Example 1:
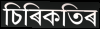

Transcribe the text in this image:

চিৰিকতিৰ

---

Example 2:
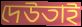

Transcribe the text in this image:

দেউতাই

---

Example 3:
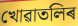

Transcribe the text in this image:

খোৱাতলিৰ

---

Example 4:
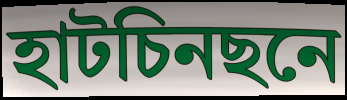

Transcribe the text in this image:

হাটচিনছনে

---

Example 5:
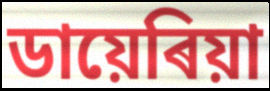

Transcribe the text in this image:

ডায়েৰিয়া